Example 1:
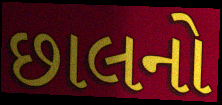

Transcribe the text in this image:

છાલનો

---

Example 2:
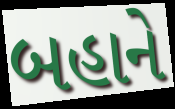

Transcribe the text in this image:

બહાને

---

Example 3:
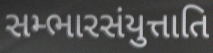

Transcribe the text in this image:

સમ્ભારસંયુત્તાતિ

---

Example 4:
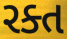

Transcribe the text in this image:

રક્ત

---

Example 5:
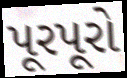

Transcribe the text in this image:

પૂરપૂરો